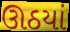
ઊઠયાં